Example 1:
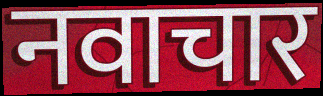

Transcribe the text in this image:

नवाचार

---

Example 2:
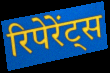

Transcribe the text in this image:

रिपेरेंट्स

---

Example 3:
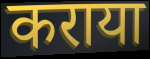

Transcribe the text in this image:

कराया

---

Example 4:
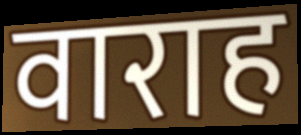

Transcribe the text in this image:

वाराह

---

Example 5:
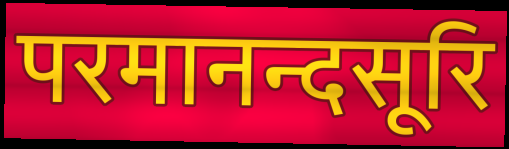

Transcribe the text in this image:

परमानन्दसूरि